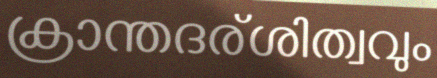
ക്രാന്തദര്ശിത്വവും